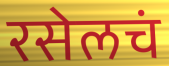
रसेलचं